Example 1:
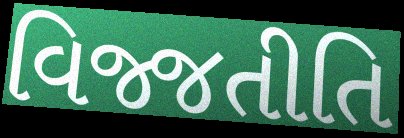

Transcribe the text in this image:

વિજ્જતીતિ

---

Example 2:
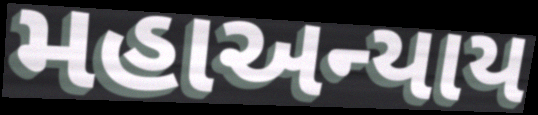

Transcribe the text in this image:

મહાઅન્યાય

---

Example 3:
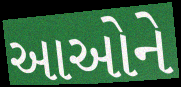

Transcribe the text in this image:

આઓને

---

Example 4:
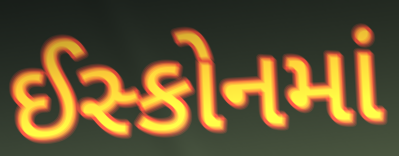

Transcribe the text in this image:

ઈસ્કોનમાં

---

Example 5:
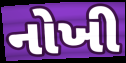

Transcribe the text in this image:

નોખી